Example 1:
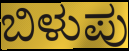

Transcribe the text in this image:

ಬಿಳುಪು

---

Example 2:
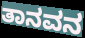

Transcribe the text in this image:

ತಾನವನ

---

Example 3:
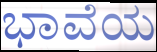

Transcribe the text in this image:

ಭಾವೆಯ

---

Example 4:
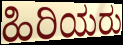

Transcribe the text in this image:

ಹಿರಿಯರು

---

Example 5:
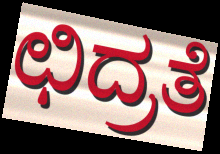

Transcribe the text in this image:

ಛಿದ್ರತೆ